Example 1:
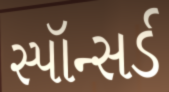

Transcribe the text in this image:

સ્પૉન્સર્ડ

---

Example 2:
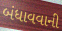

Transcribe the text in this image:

બંધાવવાની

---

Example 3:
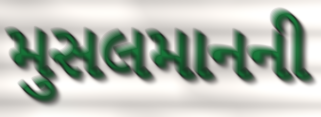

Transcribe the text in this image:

મુસલમાનની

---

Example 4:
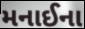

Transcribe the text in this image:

મનાઈના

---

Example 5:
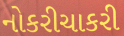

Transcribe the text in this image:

નોકરીચાકરી